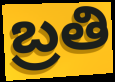
బ్రతి